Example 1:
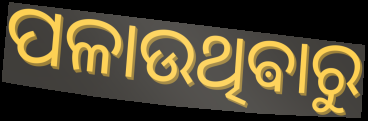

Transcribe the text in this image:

ପଳାଉଥିଵାରୁ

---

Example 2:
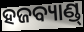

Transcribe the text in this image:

ହଜବ୍ୟାଣ୍ଡ୍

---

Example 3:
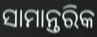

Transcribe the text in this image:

ସାମାନ୍ତରିକ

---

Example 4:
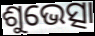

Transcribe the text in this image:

ଶୁଭେତ୍ସା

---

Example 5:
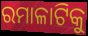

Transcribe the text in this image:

ରମାଳାଟିକୁ